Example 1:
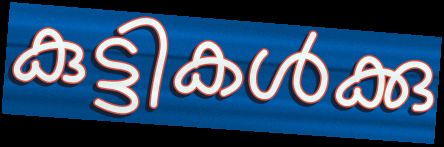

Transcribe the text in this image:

കുട്ടികൾക്കു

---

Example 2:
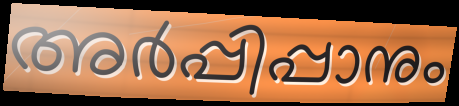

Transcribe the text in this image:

അർപ്പിപ്പാനും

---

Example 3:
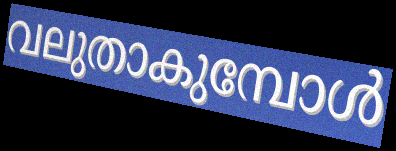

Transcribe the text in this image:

വലുതാകുമ്പോൾ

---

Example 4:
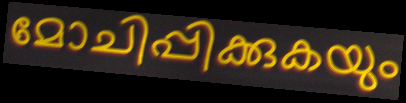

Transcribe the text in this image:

മോചിപ്പിക്കുകയും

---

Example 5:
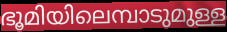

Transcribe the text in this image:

ഭൂമിയിലെമ്പാടുമുള്ള